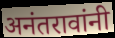
अनंतरावांनी